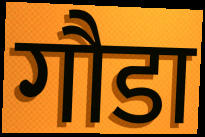
गौडा